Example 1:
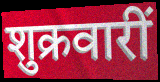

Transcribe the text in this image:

शुक्रवारीं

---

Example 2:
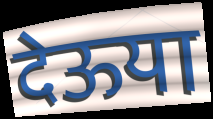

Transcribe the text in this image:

देऊया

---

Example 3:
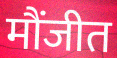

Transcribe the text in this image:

मौंजीत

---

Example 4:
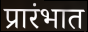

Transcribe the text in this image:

प्रारंभात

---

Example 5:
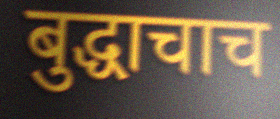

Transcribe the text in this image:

बुद्धाचाच